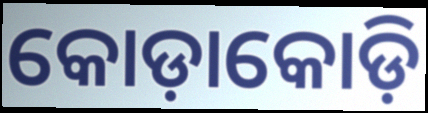
କୋଡ଼ାକୋଡ଼ି